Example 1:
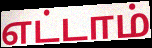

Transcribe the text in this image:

எட்டாம்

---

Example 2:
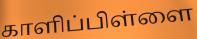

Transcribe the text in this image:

காளிப்பிள்ளை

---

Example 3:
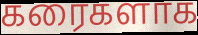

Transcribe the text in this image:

கரைகளாக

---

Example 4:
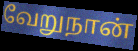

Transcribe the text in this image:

வேறுநான்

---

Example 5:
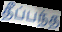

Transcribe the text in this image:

தீப்பந்த